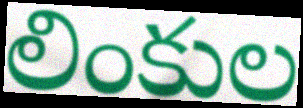
లింకుల